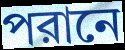
পরানে